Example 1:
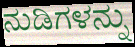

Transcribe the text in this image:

ನುಡಿಗಳನ್ನು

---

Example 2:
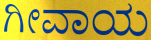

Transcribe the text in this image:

ಗೀವಾಯ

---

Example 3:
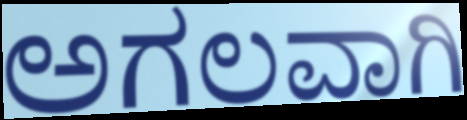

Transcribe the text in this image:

ಅಗಲವಾಗಿ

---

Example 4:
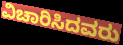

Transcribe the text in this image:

ವಿಚಾರಿಸಿದವರು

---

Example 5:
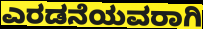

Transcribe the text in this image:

ಎರಡನೆಯವರಾಗಿ